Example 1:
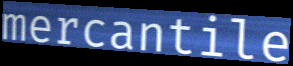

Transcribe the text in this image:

mercantile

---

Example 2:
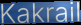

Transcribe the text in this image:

Kakrail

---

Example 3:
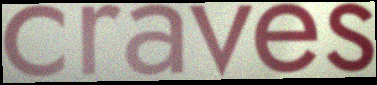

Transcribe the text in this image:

craves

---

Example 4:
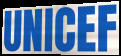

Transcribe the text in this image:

UNICEF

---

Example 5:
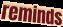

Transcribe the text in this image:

reminds